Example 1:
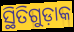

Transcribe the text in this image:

ସ୍ଥିତିଗୁଡ଼ାକ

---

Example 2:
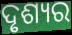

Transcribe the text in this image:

ଦୃଶ୍ୟର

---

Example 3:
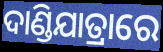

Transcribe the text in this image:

ଦାଣ୍ଡିଯାତ୍ରାରେ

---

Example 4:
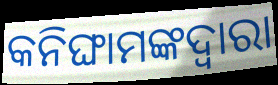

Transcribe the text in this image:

କନିଙ୍ଘାମଙ୍କଦ୍ଵାରା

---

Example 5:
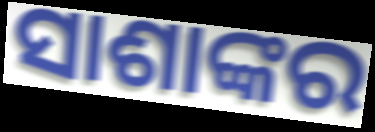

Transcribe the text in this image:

ସାଶାଙ୍କର